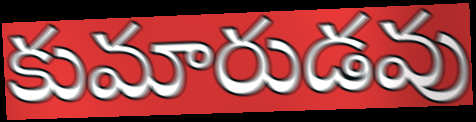
కుమారుడవు